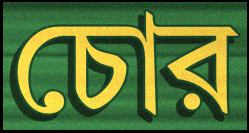
চোর